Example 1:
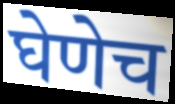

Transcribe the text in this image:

घेणेच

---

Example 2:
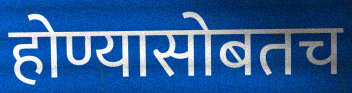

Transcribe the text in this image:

होण्यासोबतच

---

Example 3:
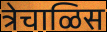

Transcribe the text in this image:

त्रेचाळिस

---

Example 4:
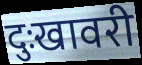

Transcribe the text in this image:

दुःखावरी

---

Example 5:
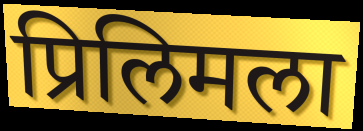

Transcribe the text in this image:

प्रिलिमला